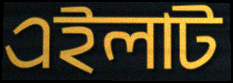
এইলাট